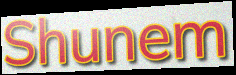
Shunem